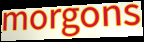
morgons